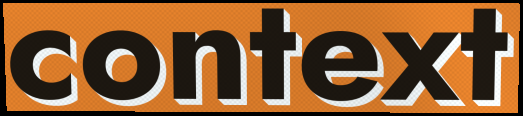
context